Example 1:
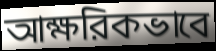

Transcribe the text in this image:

আক্ষরিকভাবে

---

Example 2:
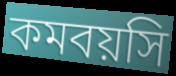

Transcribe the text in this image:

কমবয়সি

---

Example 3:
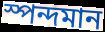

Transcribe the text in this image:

স্পন্দমান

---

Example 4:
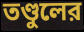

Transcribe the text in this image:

তণ্ডুলের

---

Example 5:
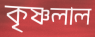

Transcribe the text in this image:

কৃষ্ণলাল